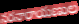
నరనారాయణుల